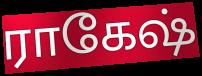
ராகேஷ்